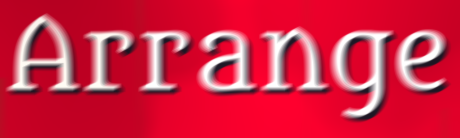
Arrange